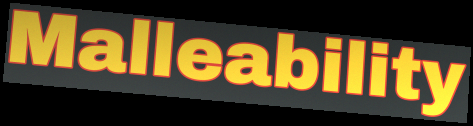
Malleability